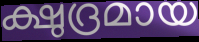
ക്ഷുദ്രമായ